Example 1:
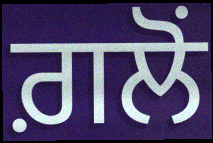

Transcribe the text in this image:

ਗ਼ਲੋਂ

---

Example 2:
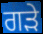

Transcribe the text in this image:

ਗੜੇ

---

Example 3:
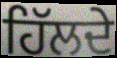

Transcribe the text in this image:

ਹਿੱਲਦੇ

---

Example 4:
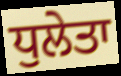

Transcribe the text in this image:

ਧੁਲੇਤਾ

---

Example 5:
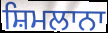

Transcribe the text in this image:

ਸ਼ਿਮਲਾਨਾ